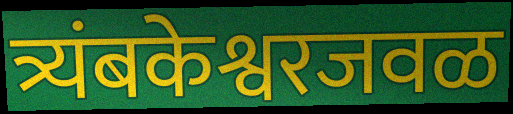
त्र्यंबकेश्वरजवळ